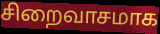
சிறைவாசமாக